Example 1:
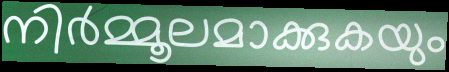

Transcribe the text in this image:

നിർമ്മൂലമാക്കുകയും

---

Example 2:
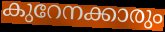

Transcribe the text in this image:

കുറേനക്കാരും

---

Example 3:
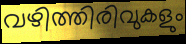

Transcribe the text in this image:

വഴിത്തിരിവുകളും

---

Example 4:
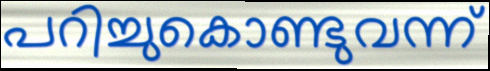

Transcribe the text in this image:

പറിച്ചുകൊണ്ടുവന്ന്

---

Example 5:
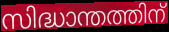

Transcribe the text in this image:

സിദ്ധാന്തത്തിന്